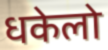
धकेलो